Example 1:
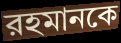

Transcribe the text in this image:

রহমানকে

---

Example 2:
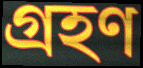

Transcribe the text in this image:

গ্রহণ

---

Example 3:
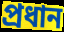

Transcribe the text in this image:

প্রধান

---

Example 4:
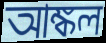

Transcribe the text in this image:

আঙ্কল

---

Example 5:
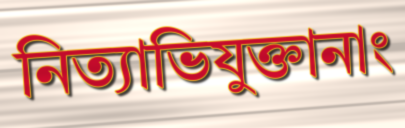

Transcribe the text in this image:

নিত্যাভিযুক্তানাং